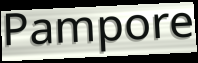
Pampore